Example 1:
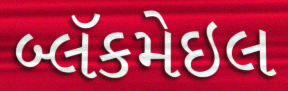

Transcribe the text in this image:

બ્લૅકમેઇલ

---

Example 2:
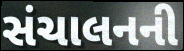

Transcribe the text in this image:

સંચાલનની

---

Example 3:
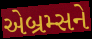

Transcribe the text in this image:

એબ્રમ્સને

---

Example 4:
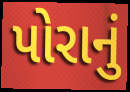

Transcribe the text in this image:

પોરાનું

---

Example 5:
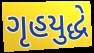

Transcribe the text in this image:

ગૃહયુદ્ધે